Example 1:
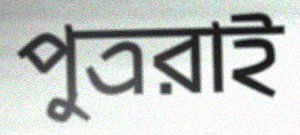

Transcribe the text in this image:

পুত্ররাই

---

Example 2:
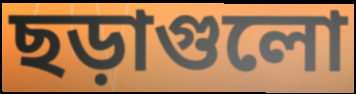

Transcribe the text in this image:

ছড়াগুলো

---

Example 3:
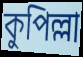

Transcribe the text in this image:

কুপিল্লা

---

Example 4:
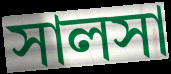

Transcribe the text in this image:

সালসা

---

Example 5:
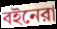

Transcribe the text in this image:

বইনেরা